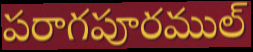
పరాగపూరముల్